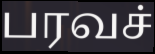
பரவச்